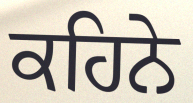
ਕਹਿਨੇ